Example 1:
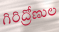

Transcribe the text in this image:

గిరిద్రోణుల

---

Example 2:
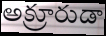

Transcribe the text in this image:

అక్రూరుడా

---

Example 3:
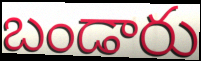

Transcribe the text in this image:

బండారు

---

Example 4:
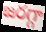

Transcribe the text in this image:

జరగ్గా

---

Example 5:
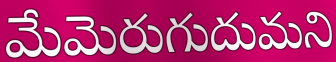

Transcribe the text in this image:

మేమెరుగుదుమని